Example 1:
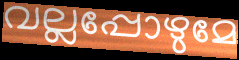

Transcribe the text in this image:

വല്ലപ്പോഴുമേ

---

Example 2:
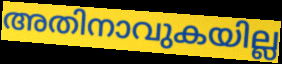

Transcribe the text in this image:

അതിനാവുകയില്ല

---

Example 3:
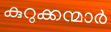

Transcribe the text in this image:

കുറുക്കന്മാർ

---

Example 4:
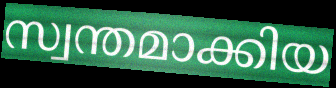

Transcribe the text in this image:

സ്വന്തമാക്കിയ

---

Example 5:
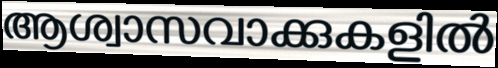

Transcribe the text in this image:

ആശ്വാസവാക്കുകളിൽ